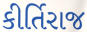
કીર્તિરાજ